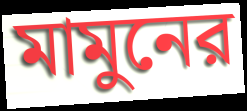
মামুনের